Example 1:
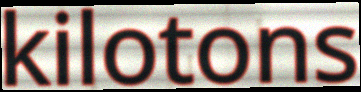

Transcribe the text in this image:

kilotons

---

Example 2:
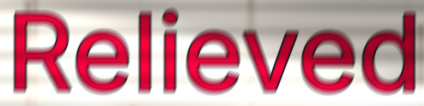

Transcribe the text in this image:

Relieved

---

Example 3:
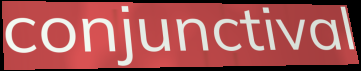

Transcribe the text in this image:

conjunctival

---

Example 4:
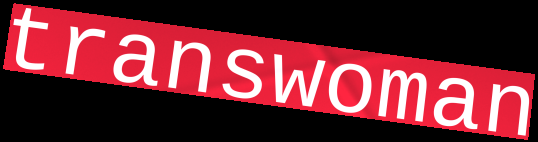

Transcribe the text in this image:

transwoman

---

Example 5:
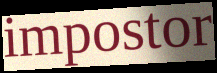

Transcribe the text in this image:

impostor